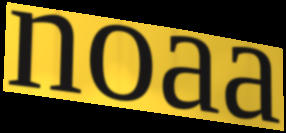
noaa